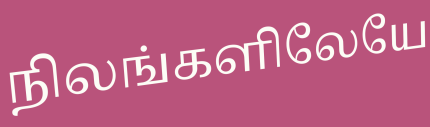
நிலங்களிலேயே